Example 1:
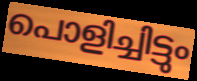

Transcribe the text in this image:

പൊളിച്ചിട്ടും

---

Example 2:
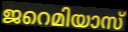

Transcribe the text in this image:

ജറെമിയാസ്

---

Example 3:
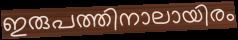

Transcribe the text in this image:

ഇരുപത്തിനാലായിരം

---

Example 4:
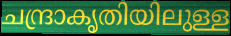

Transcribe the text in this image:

ചന്ദ്രാകൃതിയിലുള്ള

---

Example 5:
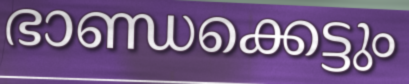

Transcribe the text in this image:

ഭാണ്ഡക്കെട്ടും